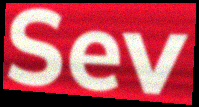
Sev